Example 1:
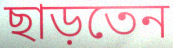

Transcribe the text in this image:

ছাড়তেন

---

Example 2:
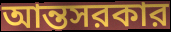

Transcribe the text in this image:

আন্তসরকার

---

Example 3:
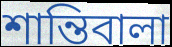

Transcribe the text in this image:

শান্তিবালা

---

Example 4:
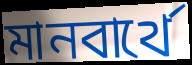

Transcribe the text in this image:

মানবার্থে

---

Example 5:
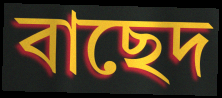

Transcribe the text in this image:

বাছেদ